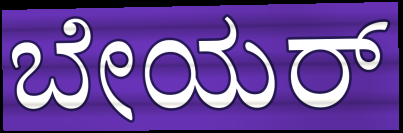
ಬೇಯರ್